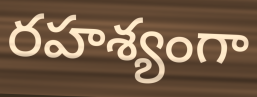
రహశ్యంగా